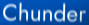
Chunder